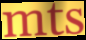
mts